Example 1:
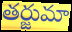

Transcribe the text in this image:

తర్జుమా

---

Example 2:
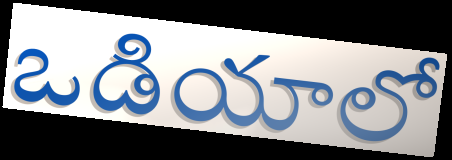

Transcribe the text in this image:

ఒడియాలో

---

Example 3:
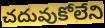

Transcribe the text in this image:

చదువుకోలేని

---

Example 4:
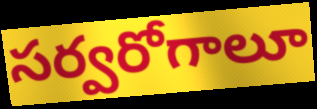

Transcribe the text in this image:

సర్వరోగాలూ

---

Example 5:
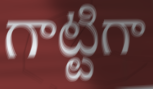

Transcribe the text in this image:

గాట్టిగా